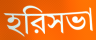
হরিসভা